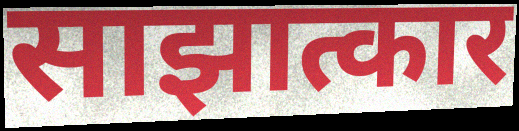
साझात्कार